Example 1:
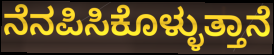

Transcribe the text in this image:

ನೆನಪಿಸಿಕೊಳ್ಳುತ್ತಾನೆ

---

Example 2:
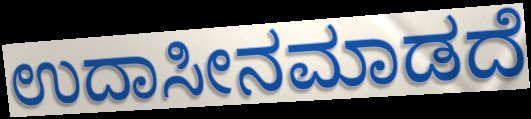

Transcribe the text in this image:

ಉದಾಸೀನಮಾಡದೆ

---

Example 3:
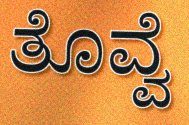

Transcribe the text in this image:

ತೊವ್ವೆ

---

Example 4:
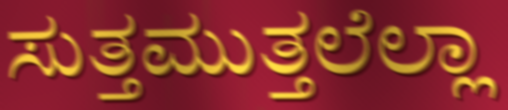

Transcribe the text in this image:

ಸುತ್ತಮುತ್ತಲೆಲ್ಲಾ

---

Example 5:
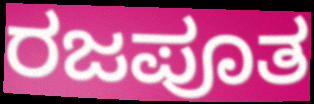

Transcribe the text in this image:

ರಜಪೂತ